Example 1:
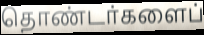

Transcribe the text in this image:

தொண்டர்களைப்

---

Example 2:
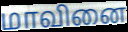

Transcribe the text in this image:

மாவினை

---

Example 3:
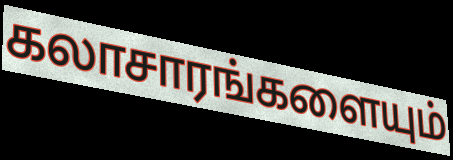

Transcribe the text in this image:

கலாசாரங்களையும்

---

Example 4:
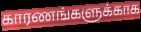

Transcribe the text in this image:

காரணங்களுக்காக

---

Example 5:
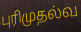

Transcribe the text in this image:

புரிமுதல்வ